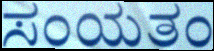
ಸಂಯತಂ